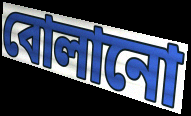
বোলানো